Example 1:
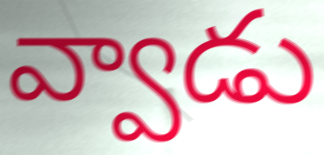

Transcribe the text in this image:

వ్వాడు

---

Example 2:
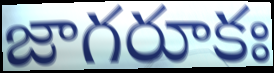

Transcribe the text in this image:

జాగరూకః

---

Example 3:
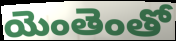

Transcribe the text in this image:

యెంతెంతో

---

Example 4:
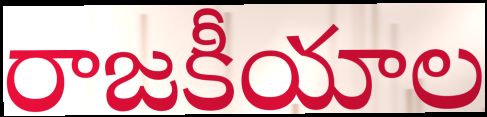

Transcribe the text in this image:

రాజకీయాల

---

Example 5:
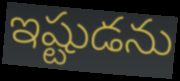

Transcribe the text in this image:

ఇష్టుడను